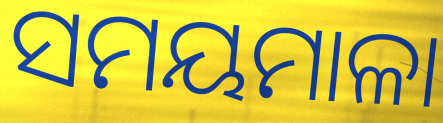
ସମୟମାଳା